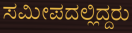
ಸಮೀಪದಲ್ಲಿದ್ದರು